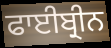
ਫਾਈਬ੍ਰੀਨ